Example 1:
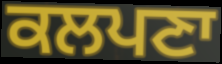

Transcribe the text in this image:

ਕਲਪਣਾ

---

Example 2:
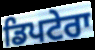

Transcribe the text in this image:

ਡਿਪਟੇਰਾ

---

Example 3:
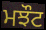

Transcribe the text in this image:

ਮਝੌਟ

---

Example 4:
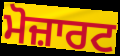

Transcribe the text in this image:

ਮੋਜ਼ਾਰਟ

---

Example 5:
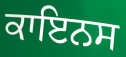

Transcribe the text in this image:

ਕਾਇਨਸ